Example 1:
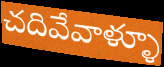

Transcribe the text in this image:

చదివేవాళ్ళూ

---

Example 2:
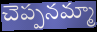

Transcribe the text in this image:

చెప్పనమ్మా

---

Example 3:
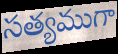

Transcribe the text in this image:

సత్యముగా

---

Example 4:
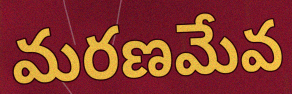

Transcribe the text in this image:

మరణమేవ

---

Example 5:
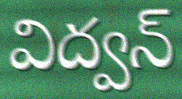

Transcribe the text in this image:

విద్వన్